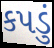
કપડું